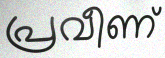
പ്രവീണ്